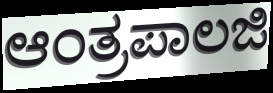
ಆಂತ್ರಪಾಲಜಿ